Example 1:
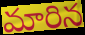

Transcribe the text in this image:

మారిన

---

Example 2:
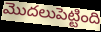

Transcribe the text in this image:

మొదలుపెట్టింది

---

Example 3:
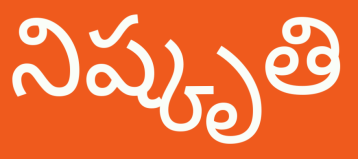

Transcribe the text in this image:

నిష్కృతి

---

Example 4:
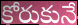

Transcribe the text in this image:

కోరుకునే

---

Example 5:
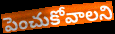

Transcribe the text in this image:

పెంచుకోవాలని